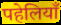
पहेलियाँ